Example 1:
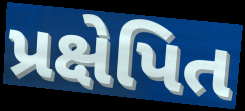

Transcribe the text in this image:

પ્રક્ષેપિત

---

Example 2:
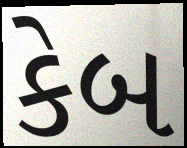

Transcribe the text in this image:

કેબ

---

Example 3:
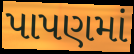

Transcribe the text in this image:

પાપણમાં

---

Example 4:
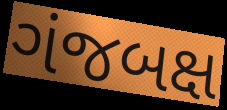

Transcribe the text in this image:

ગંજબક્ષ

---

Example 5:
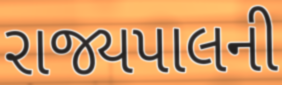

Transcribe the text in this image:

રાજ્યપાલની